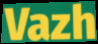
Vazh